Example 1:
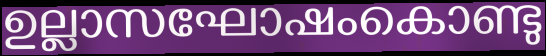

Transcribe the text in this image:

ഉല്ലാസഘോഷംകൊണ്ടു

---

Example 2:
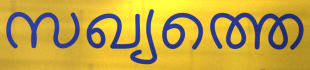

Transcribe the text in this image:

സഖ്യത്തെ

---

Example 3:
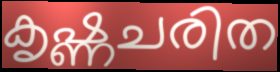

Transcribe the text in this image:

കൃഷ്ണചരിത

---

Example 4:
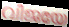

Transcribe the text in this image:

വിജയേ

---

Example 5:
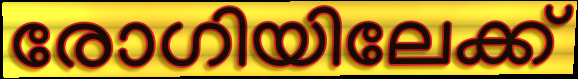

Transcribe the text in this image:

രോഗിയിലേക്ക്